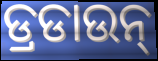
ଡ୍ରଡାଉନ୍